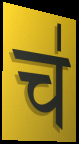
च॑